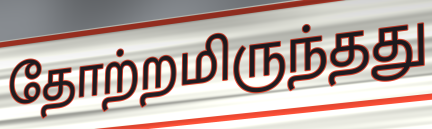
தோற்றமிருந்தது